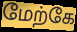
மேற்கே